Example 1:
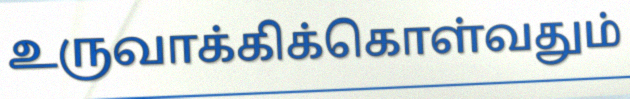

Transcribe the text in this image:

உருவாக்கிக்கொள்வதும்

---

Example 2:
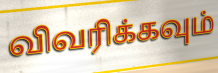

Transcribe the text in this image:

விவரிக்கவும்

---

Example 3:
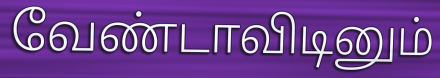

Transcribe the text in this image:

வேண்டாவிடினும்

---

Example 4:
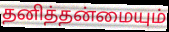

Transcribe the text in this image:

தனித்தன்மையும்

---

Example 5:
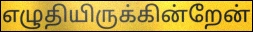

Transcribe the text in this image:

எழுதியிருக்கின்றேன்